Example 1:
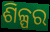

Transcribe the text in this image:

ଶିଳ୍ପର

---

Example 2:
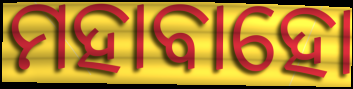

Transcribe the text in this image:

ମହାବାହୋ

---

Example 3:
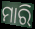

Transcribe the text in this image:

ମାରି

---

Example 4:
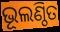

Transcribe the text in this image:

ଭୂଲଣ୍ଠିତ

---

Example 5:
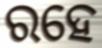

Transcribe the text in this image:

ରହେ